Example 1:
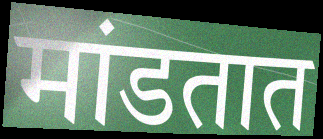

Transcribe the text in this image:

मांडतात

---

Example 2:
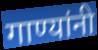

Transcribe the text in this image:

गाण्यांनी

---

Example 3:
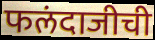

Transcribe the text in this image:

फलंदाजीची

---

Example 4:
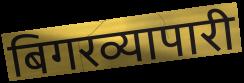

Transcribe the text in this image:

बिगरव्यापारी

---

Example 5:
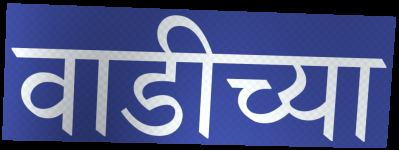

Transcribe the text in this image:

वाडीच्या